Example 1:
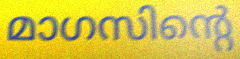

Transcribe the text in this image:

മാഗസിന്റെ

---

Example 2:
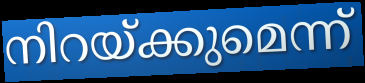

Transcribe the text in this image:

നിറയ്ക്കുമെന്ന്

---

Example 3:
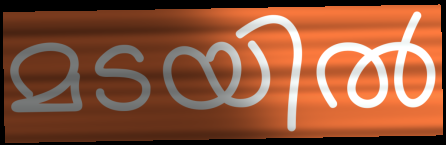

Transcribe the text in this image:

മടയിൽ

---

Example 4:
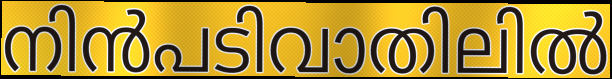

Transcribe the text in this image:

നിൻപടിവാതിലിൽ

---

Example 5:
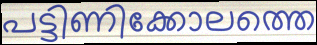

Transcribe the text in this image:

പട്ടിണിക്കോലത്തെ